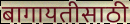
बागायतीसाठी